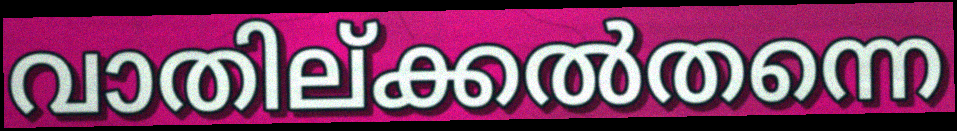
വാതില്ക്കൽതന്നെ